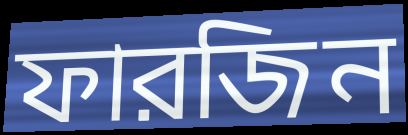
ফারজিন